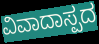
ವಿವಾದಾಸ್ಪದ